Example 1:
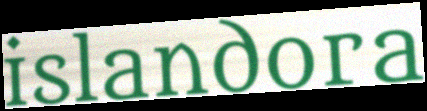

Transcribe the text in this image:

islandora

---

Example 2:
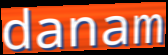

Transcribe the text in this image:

danam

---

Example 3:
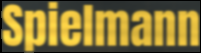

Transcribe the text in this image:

Spielmann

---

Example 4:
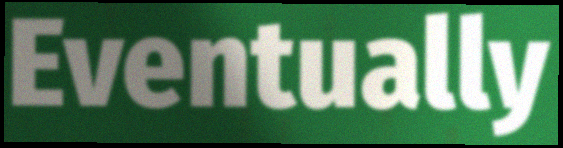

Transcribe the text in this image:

Eventually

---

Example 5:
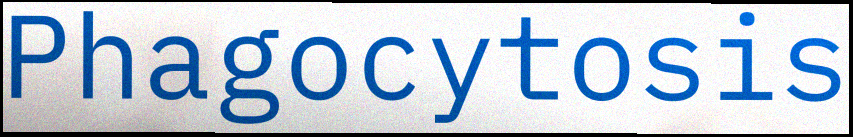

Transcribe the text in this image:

Phagocytosis